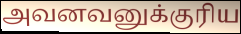
அவனவனுக்குரிய